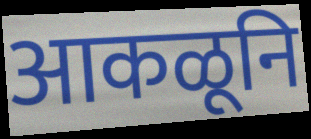
आकळूनि